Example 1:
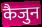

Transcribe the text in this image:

कैजुन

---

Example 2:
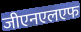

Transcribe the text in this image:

जीएनएलएफ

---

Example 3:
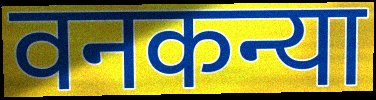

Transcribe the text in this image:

वनकन्या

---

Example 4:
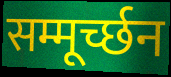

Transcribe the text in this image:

सम्मूर्च्छन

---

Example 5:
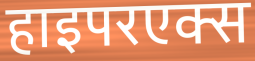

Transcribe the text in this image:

हाइपरएक्स